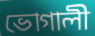
ভোগালী